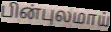
பின்புலமாய்